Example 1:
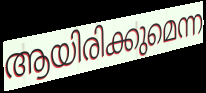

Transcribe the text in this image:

ആയിരിക്കുമെന്ന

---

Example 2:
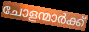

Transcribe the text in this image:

ചോളന്മാർക്ക്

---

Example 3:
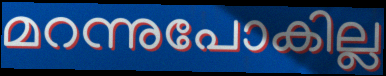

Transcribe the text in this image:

മറന്നുപോകില്ല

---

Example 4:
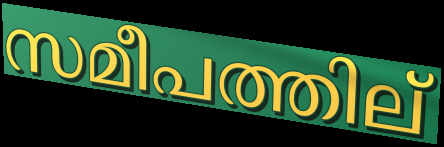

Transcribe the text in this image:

സമീപത്തില്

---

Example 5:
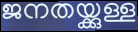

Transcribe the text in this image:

ജനതയ്ക്കുള്ള